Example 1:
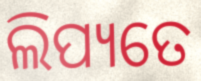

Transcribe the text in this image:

ଲିପ୍ୟତେ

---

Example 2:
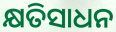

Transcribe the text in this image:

କ୍ଷତିସାଧନ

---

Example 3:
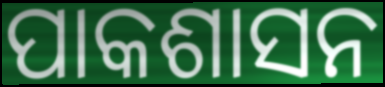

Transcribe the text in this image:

ପାକଶାସନ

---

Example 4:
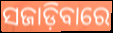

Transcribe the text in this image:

ସଜାଡ଼ିବାରେ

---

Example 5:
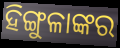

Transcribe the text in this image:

ହିଙ୍ଗୁଳାଙ୍କର